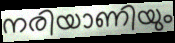
നരിയാണിയും